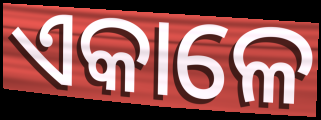
ଏକାଳେ